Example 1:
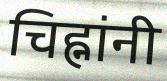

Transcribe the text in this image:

चिह्नांनी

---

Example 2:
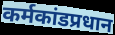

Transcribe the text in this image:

कर्मकांडप्रधान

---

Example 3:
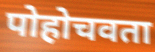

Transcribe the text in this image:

पोहोचवता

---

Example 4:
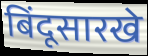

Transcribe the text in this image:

बिंदूसारखे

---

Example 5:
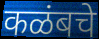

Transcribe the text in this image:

कळंबचे